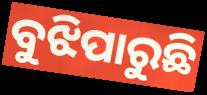
ବୁଝିପାରୁଛି